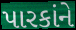
પારકાંને